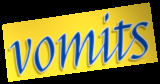
vomits